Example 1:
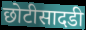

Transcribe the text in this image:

छोटीसादडी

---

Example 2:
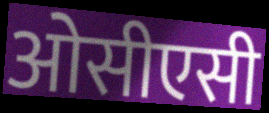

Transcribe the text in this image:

ओसीएसी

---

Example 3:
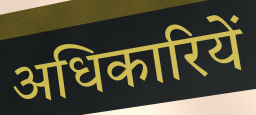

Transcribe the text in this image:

अधिकारियें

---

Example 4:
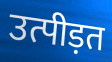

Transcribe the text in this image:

उत्पीड़त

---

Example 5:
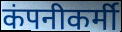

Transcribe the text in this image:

कंपनीकर्मी